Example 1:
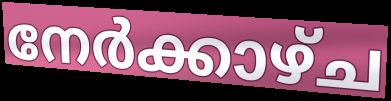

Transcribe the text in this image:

നേർക്കാഴ്ച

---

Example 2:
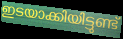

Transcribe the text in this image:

ഇടയാക്കിയിട്ടുണ്ട്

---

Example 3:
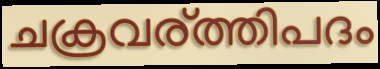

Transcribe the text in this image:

ചക്രവര്ത്തിപദം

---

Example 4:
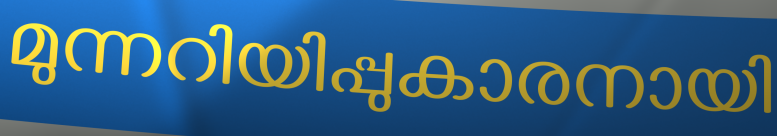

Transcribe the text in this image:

മുന്നറിയിപ്പുകാരനായി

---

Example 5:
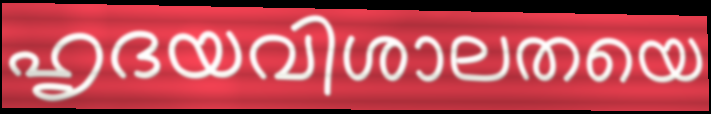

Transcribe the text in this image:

ഹൃദയവിശാലതയെ